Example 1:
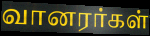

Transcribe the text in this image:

வானரர்கள்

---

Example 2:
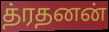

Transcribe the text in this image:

த்ரதனன்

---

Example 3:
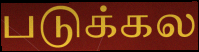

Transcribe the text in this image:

படுக்கல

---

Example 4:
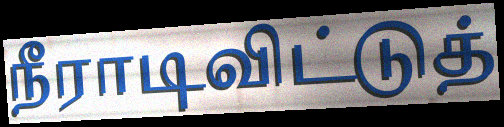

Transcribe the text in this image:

நீராடிவிட்டுத்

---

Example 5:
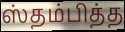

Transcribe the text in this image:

ஸ்தம்பித்த